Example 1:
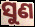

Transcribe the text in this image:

ସୁଣ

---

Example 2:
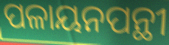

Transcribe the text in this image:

ପଳାୟନପନ୍ଥୀ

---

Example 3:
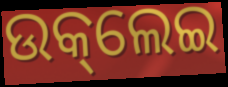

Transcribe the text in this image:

ଉକ୍‌ଲେଇ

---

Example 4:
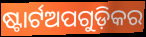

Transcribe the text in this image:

ଷ୍ଟାର୍ଟଅପଗୁଡ଼ିକର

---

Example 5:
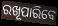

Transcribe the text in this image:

ରଖୂପାରିବେ